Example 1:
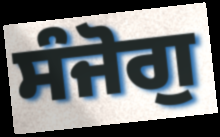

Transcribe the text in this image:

ਸੰਜੋਗੁ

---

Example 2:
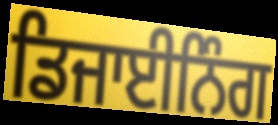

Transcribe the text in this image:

ਡਿਜਾਈਨਿੰਗ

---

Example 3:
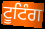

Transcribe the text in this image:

ਟੂਟਿੰਗ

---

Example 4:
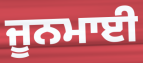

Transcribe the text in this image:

ਜੂਨਮਾਈ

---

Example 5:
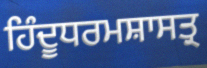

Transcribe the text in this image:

ਹਿੰਦੂਧਰਮਸ਼ਾਸਤ੍ਰ